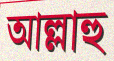
আল্লাহু